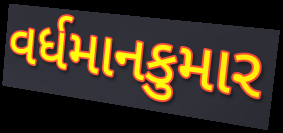
વર્ધમાનકુમાર